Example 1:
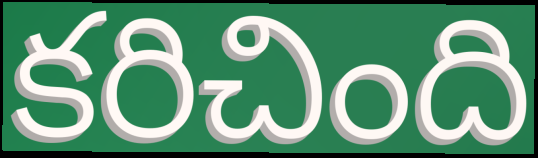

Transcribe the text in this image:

కరిచింది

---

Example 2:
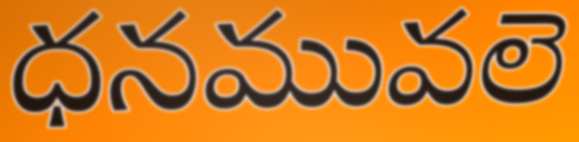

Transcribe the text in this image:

ధనమువలె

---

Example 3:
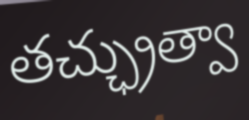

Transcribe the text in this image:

తచ్ఛ్రుత్వా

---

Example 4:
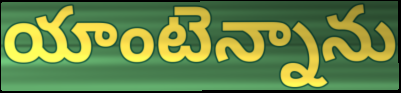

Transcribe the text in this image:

యాంటెన్నాను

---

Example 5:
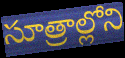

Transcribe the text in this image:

సూత్రాల్లోని